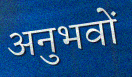
अनुभवों